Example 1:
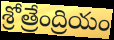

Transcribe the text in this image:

శ్రోత్రేంద్రియం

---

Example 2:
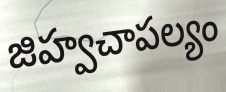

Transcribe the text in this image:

జిహ్వచాపల్యం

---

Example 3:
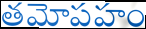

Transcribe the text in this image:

తమోపహం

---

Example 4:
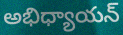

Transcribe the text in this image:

అభిధ్యాయన్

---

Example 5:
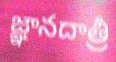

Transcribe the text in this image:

జ్ఞానదాత్రీ